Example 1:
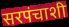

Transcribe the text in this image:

सरपंचाशी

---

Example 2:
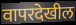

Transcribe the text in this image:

वापरदेखील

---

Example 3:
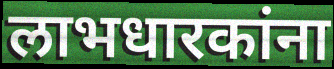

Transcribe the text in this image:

लाभधारकांना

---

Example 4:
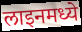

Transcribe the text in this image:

लाइनमध्ये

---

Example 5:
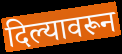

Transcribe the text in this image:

दिल्यावरून